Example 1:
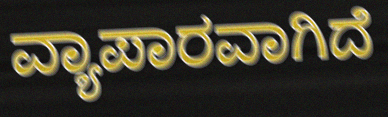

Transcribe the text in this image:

ವ್ಯಾಪಾರವಾಗಿದೆ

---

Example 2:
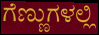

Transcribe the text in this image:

ಗೆಣ್ಣುಗಳಲ್ಲಿ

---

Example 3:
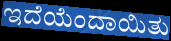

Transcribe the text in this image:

ಇದೆಯೆಂದಾಯಿತು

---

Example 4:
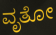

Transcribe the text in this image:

ವೃತೋ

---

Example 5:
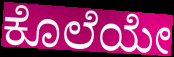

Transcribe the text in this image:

ಕೊಲೆಯೇ